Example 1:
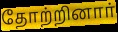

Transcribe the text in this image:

தோற்றினார்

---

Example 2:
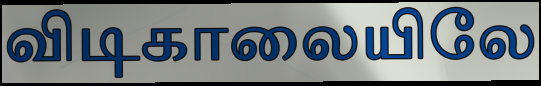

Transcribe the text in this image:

விடிகாலையிலே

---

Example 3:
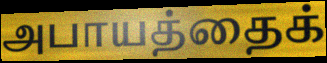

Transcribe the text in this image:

அபாயத்தைக்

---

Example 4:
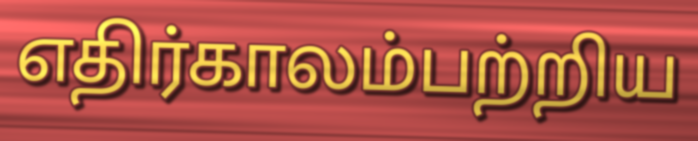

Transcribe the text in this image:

எதிர்காலம்பற்றிய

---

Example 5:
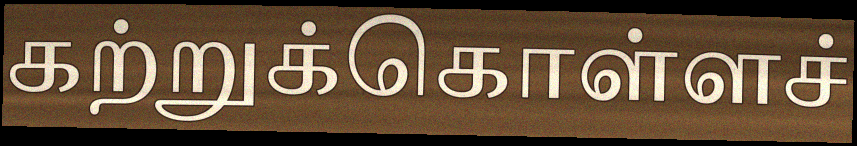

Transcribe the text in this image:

கற்றுக்கொள்ளச்